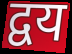
द्वय